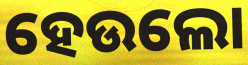
ହେଉଲୋ